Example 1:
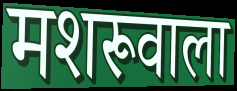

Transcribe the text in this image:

मशरूवाला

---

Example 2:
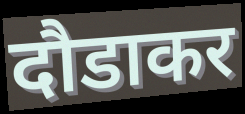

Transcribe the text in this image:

दौडाकर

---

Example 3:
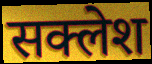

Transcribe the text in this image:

सक्लेश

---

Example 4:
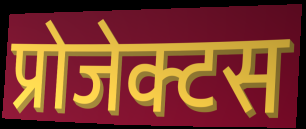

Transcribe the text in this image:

प्रोजेक्टस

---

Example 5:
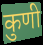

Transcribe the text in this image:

कुणी